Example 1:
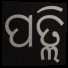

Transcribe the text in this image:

ପତ୍ଲି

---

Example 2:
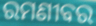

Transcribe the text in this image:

ରମଣୀବର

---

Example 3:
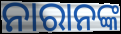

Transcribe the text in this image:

ନାରାନଙ୍କ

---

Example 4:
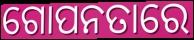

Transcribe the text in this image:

ଗୋପନତାରେ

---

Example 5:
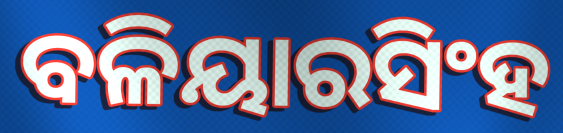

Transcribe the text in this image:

ବଳିୟାରସିଂହ